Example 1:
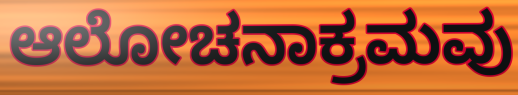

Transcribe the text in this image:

ಆಲೋಚನಾಕ್ರಮವು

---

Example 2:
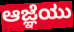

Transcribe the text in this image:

ಆಜ್ಞೆಯು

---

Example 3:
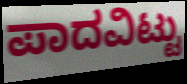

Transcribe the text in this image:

ಪಾದವಿಟ್ಟು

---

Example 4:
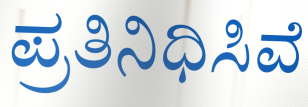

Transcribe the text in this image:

ಪ್ರತಿನಿಧಿಸಿವೆ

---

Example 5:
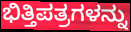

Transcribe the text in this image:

ಭಿತ್ತಿಪತ್ರಗಳನ್ನು